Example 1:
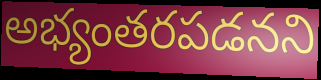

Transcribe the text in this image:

అభ్యంతరపడనని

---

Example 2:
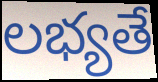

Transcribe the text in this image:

లభ్యతే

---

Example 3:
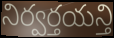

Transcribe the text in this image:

నిర్వర్తయన్తి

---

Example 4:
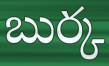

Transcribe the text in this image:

బుర్క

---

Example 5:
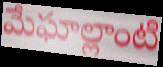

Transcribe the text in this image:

మేఘాల్లాంటి